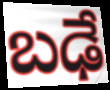
బఢే